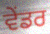
ਵੇਂਡਰ